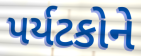
પર્યટકોને